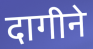
दागीने